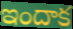
ఇందాక